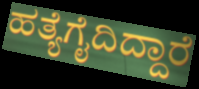
ಹತ್ಯೆಗೈದಿದ್ದಾರೆ